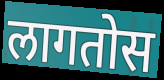
लागतोस